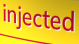
injected